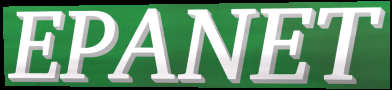
EPANET